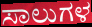
ಸಾಲುಗಳ